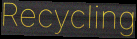
Recycling